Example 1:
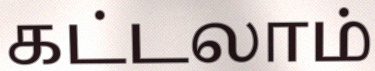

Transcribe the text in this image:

கட்டலாம்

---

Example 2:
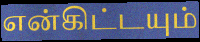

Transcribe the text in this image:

என்கிட்டயும்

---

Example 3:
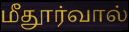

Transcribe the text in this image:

மீதூர்வால்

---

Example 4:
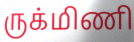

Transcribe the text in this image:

ருக்மிணி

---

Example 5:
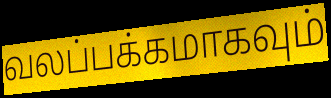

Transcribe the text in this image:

வலப்பக்கமாகவும்